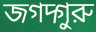
জগদ্গুরু